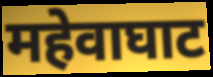
महेवाघाट